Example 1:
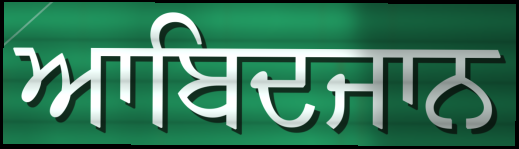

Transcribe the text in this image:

ਆਬਿਦਜਾਨ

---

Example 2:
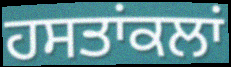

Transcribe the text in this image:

ਹਸਤਾਂਕਲਾਂ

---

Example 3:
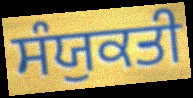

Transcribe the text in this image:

ਸੰਯੁਕਤੀ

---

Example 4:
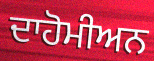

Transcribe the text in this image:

ਦਾਹੋਮੀਅਨ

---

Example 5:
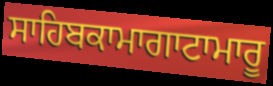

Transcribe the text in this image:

ਸਾਹਿਬਕਾਮਾਗਾਟਾਮਾਰੂ